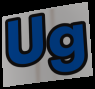
Ug